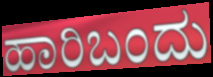
ಹಾರಿಬಂದು